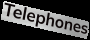
Telephones